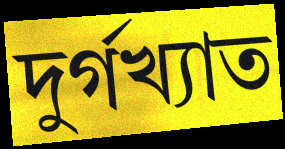
দুর্গখ্যাত